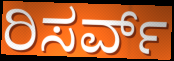
ರಿಸರ್ವ್